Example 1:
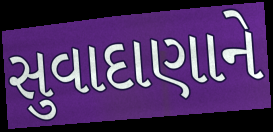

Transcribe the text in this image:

સુવાદાણાને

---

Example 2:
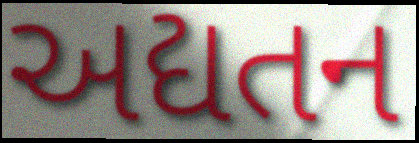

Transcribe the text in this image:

અદ્યતન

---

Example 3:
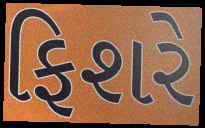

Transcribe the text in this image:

ફિશરે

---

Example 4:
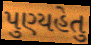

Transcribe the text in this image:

પુણ્યહેતુ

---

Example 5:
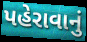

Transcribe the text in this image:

પહેરાવાનું